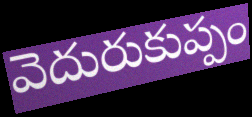
వెదురుకుప్పం